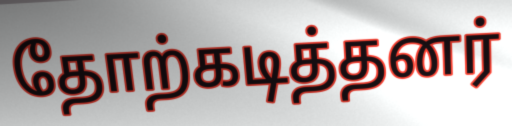
தோற்கடித்தனர்